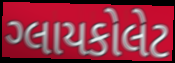
ગ્લાયકોલેટ